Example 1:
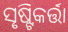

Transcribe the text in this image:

ସୃଷ୍ଟିକର୍ତ୍ତା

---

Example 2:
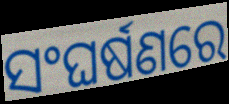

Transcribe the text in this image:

ସଂଘର୍ଷଣରେ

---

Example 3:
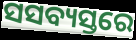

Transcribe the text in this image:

ସସବ୍ୟସ୍ତରେ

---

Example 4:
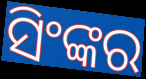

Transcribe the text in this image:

ସିଂଙ୍କର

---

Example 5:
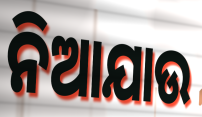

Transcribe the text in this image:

ନିଆଯାଉ